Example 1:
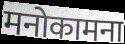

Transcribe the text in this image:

मनोकामना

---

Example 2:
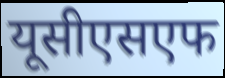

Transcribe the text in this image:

यूसीएसएफ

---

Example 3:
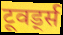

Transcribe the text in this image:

टूवर्ड्स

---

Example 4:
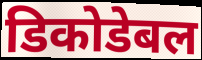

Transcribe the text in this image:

डिकोडेबल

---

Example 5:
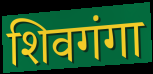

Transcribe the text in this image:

शिवगंगा